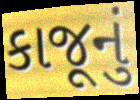
કાજૂનું